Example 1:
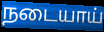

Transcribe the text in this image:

நடையாய்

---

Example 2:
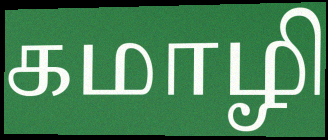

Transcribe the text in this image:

கமாழி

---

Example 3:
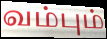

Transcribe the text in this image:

வம்பும்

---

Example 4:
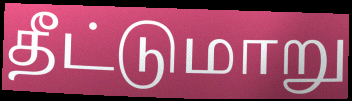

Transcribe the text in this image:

தீட்டுமாறு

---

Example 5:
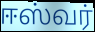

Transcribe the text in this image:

ஈஸ்வர்